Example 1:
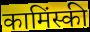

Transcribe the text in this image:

कामिंस्की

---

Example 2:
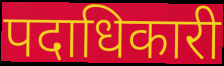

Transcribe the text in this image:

पदाधिकारी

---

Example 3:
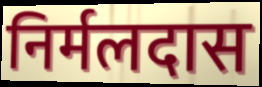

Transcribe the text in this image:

निर्मलदास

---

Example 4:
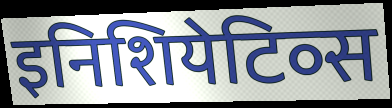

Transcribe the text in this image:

इनिशियेटिव्स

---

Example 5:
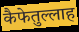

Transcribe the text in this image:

कैफेतुल्लाह